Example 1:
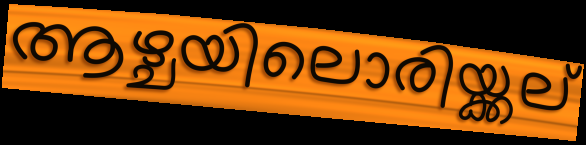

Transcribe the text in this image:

ആഴ്ചയിലൊരിയ്ക്കല്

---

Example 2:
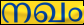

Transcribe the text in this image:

നഖം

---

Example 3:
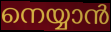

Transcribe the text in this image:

നെയ്യാൻ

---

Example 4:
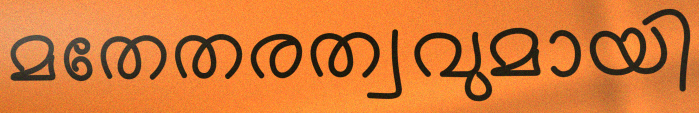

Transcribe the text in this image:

മതേതരത്വവുമായി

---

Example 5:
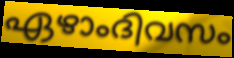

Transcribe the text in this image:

ഏഴാംദിവസം